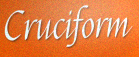
Cruciform